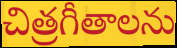
చిత్రగీతాలను